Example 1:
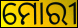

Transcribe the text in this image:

ମୋରୀ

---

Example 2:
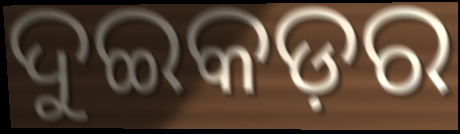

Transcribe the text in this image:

ଦୁଇକଡ଼ର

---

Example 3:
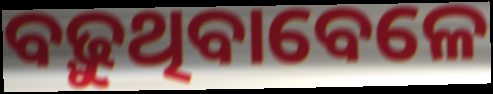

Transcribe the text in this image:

ବଢ଼ୁଥିବାବେଳେ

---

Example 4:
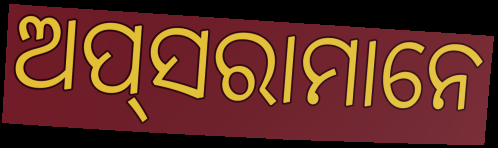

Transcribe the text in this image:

ଅପ୍‍ସରାମାନେ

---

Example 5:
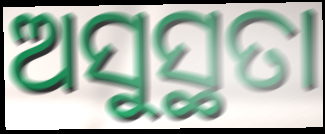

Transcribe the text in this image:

ଅସୁସ୍ଥତା